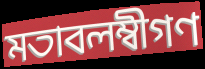
মতাবলম্বীগণ